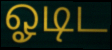
ஓடிட